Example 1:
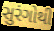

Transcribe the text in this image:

સુરંગોથી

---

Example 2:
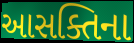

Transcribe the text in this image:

આસક્તિના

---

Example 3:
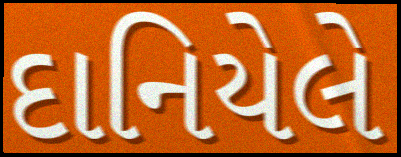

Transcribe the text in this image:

દાનિયેલે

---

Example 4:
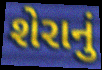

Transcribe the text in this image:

શેરાનું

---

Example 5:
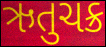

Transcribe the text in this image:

ઋતુચક્ર